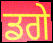
ਡਗੇ